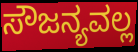
ಸೌಜನ್ಯವಲ್ಲ